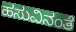
ಹಸುವಿನಂತೆ